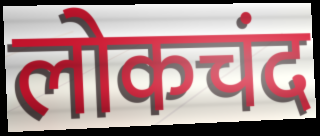
लोकचंद